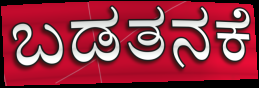
ಬಡತನಕೆ